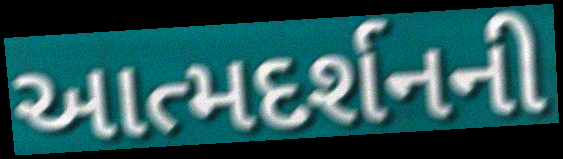
આત્મદર્શનની